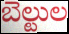
బెల్టుల